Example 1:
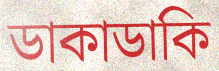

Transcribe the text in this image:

ডাকাডাকি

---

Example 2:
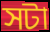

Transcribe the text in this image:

সটা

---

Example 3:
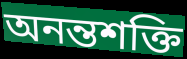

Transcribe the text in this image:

অনন্তশক্তি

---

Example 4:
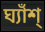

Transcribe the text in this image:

ঘ্যাঁশ্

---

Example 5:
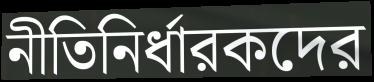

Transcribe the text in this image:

নীতিনির্ধারকদের